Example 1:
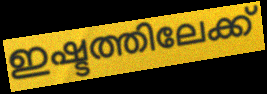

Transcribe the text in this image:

ഇഷ്ടത്തിലേക്ക്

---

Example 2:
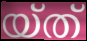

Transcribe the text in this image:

യ്ത്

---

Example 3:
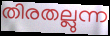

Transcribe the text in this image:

തിരതല്ലുന്ന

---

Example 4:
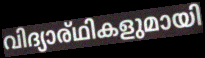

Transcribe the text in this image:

വിദ്യാര്ഥികളുമായി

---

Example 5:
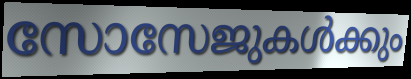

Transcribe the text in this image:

സോസേജുകൾക്കും